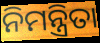
ନିମନ୍ତ୍ରିତା